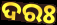
ଦରଃ